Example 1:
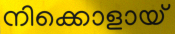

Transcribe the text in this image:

നിക്കൊളായ്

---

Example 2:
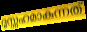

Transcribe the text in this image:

ദുസ്സഹമാകുന്നത്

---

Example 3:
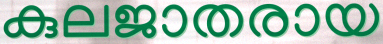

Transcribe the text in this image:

കുലജാതരായ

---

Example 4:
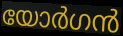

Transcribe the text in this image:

യോർഗൻ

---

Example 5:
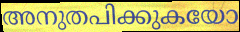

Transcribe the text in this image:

അനുതപിക്കുകയോ